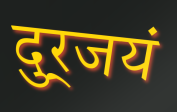
दुर्जयं